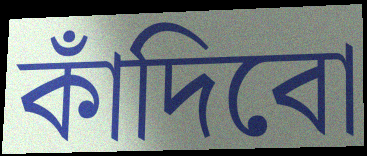
কাঁদিবো